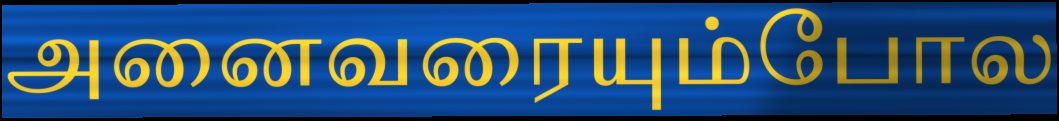
அனைவரையும்போல